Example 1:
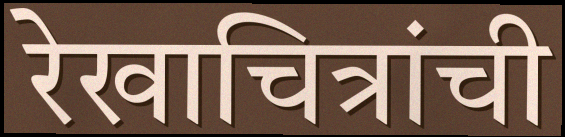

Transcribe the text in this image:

रेखाचित्रांची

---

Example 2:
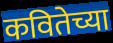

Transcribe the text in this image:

कवितेच्या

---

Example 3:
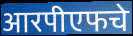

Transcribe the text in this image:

आरपीएफचे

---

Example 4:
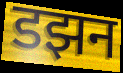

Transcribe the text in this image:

डझन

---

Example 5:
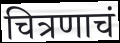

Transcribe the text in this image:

चित्रणाचं